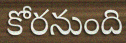
కోరనుంది